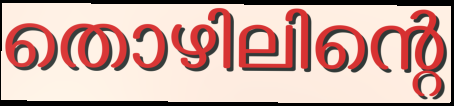
തൊഴിലിന്റെ